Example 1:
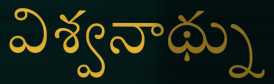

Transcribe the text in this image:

విశ్వనాథ్ను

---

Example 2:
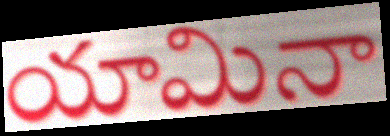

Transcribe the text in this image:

యామినా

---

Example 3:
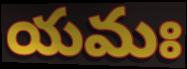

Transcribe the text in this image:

యమః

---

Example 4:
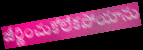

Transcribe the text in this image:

జీర్ణించుకోలేకపోయాను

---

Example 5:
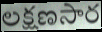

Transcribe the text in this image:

లక్షణసార